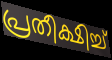
പ്രതീക്ഷിച്ച്